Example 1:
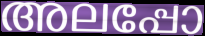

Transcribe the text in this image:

അലപ്പോ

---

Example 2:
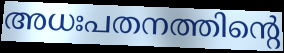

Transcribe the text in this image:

അധഃപതനത്തിന്റെ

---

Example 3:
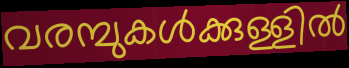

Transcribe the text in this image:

വരമ്പുകൾക്കുള്ളിൽ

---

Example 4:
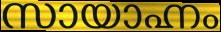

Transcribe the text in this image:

സായാഹ്നം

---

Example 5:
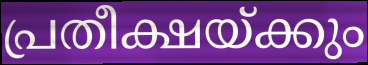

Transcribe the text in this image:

പ്രതീക്ഷയ്ക്കും